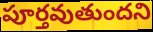
పూర్తవుతుందని